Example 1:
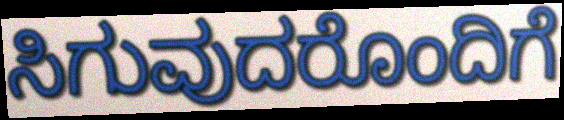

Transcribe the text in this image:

ಸಿಗುವುದರೊಂದಿಗೆ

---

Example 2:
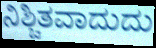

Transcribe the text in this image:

ನಿಶ್ಚಿತವಾದುದು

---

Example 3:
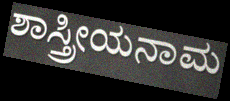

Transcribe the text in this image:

ಶಾಸ್ತ್ರೀಯನಾಮ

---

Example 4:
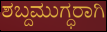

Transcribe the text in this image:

ಶಬ್ದಮುಗ್ಧರಾಗಿ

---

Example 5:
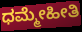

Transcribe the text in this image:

ಧಮ್ಮೇಹೀತಿ